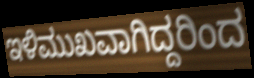
ಇಳಿಮುಖವಾಗಿದ್ದರಿಂದ